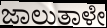
ಜಾಲುತಾಳೇ